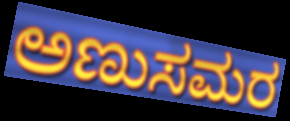
ಅಣುಸಮರ